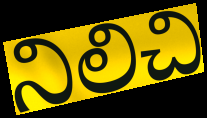
నిలిచి